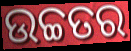
ଉଚ୍ଚତର